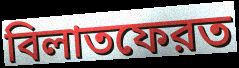
বিলাতফেরত